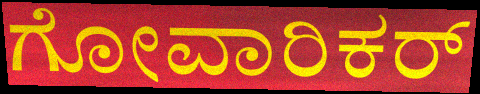
ಗೋವಾರಿಕರ್